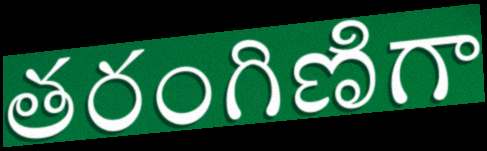
తరంగిణిగా